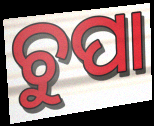
ଚୁପା